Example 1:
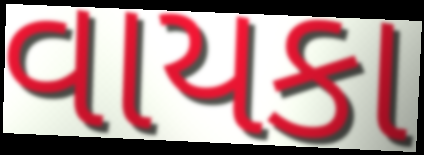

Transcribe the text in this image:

વાયકા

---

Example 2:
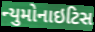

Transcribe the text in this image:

ન્યુમોનાઇટિસ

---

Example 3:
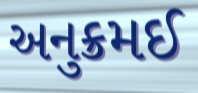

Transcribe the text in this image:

અનુક્રમઈ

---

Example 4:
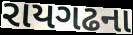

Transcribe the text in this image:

રાયગઢના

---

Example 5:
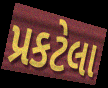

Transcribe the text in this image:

પ્રકટેલા